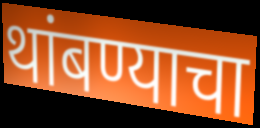
थांबण्याचा